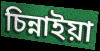
চিন্নাইয়া